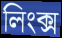
লিংক্স